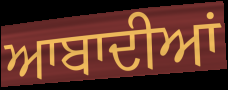
ਆਬਾਦੀਆਂ